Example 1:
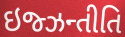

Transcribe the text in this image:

ઇજ્ઝન્તીતિ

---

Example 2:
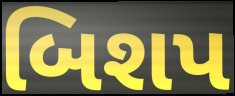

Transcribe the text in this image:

બિશપ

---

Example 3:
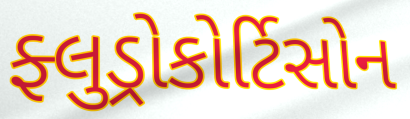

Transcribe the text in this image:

ફ્લુડ્રોકોર્ટિસોન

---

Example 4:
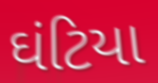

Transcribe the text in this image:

ઘંટિયા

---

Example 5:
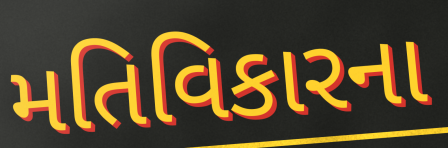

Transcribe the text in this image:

મતિવિકારના